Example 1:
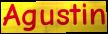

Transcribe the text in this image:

Agustin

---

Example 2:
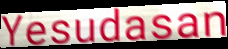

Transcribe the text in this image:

Yesudasan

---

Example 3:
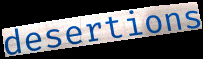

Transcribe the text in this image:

desertions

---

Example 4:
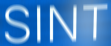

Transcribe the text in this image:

SINT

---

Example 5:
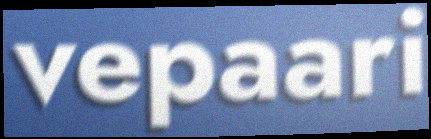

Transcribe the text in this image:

vepaari